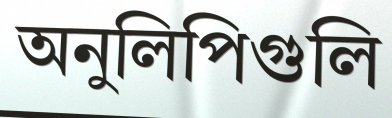
অনুলিপিগুলি